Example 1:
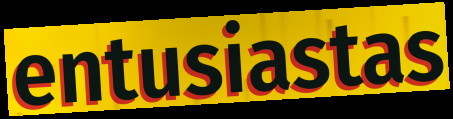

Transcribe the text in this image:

entusiastas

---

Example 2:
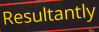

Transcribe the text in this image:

Resultantly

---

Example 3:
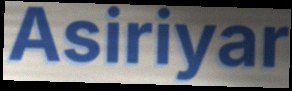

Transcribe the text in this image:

Asiriyar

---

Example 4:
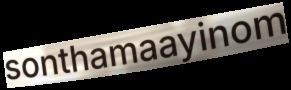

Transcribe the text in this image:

sonthamaayinom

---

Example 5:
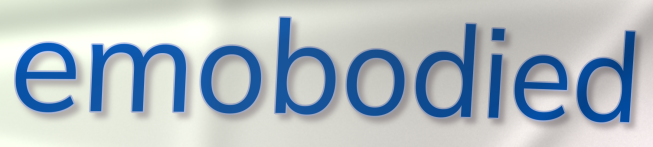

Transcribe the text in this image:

emobodied